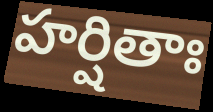
హర్షితాః